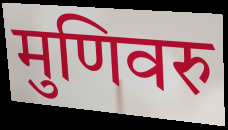
मुणिवरु